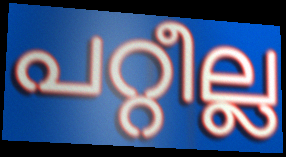
പറ്റീല്ല